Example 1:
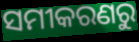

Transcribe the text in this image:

ସମୀକରଣରୁ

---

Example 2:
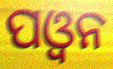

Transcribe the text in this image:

ପଓ୍ବନ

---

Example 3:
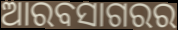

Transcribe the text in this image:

ଆରବସାଗରର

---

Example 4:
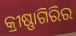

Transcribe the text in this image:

କ୍ରୀଷ୍ଣାଗିରିର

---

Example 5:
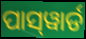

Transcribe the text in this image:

ପାସ୍‌ୱାର୍ଡ